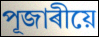
পূজাৰীয়ে